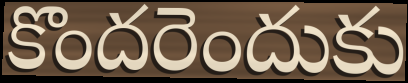
కొందరెందుకు